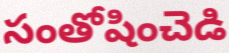
సంతోషించెడి